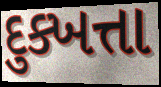
દુક્ખત્તા